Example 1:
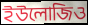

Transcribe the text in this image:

ইউলোজিও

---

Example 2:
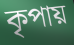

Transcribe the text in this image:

কৃপায়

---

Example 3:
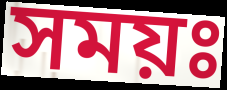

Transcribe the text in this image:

সময়ঃ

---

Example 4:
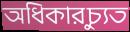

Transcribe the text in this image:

অধিকারচ্যুত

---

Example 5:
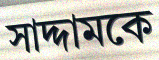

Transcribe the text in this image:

সাদ্দামকে